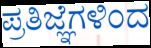
ಪ್ರತಿಜ್ಞೆಗಳಿಂದ